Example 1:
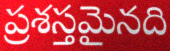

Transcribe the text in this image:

ప్రశస్తమైనది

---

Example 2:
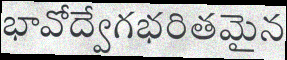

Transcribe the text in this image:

భావోద్వేగభరితమైన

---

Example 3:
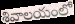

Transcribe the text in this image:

శివాలయంలో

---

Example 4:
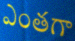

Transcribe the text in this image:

ఎంతగా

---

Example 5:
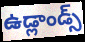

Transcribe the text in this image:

ఉడ్లాండ్స్